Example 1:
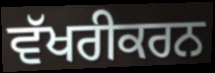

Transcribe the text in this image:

ਵੱਖਰੀਕਰਨ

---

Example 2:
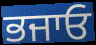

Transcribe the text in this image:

ਭਜਾਓ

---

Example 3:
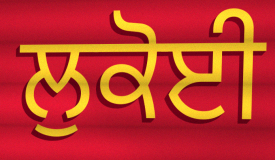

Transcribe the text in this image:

ਲੁਕੋਈ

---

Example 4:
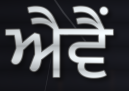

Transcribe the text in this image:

ਐਵੈਂ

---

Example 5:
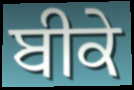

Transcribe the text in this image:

ਬੀਕੇ